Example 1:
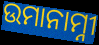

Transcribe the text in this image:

ଉମାନାମ୍ନୀ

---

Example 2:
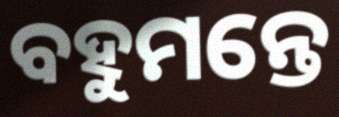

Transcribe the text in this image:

ବହୁମନ୍ତେ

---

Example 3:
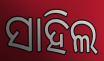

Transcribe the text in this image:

ସାହିଲ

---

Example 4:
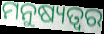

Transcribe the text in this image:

ମନୁଷ୍ୟତ୍ବର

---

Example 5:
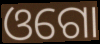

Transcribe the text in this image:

ଓଗୋ